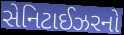
સેનિટાઈઝરનો